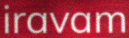
iravam